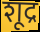
शूद्र